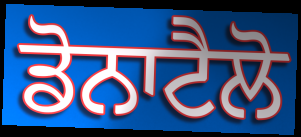
ਡੋਨਾਟੈਲੋ